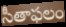
సీతాఫలం